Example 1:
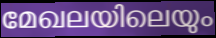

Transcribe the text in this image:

മേഖലയിലെയും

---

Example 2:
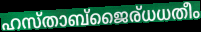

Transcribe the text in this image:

ഹസ്താബ്ജൈര്ധധതീം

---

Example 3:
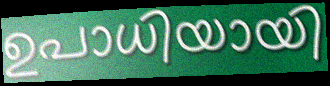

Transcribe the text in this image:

ഉപാധിയായി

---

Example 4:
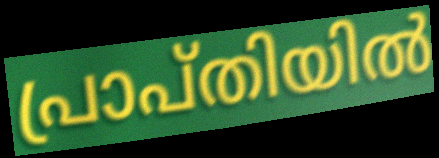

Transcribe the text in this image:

പ്രാപ്തിയിൽ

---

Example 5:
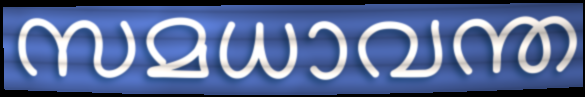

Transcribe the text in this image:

സമധാവന്ത